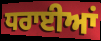
ਧਰਾਈਆਂ